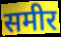
समीर